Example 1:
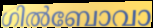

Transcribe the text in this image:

ഗിൽബോവാ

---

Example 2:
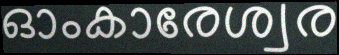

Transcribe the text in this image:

ഓംകാരേശ്വര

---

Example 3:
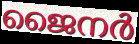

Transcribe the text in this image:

ജൈനർ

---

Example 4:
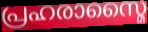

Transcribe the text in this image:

പ്രഹരാസ്മൈ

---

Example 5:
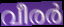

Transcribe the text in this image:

വീരർ